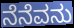
ನೆನೆವನು